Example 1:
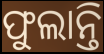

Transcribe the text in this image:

ଫୁଲାନ୍ତି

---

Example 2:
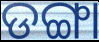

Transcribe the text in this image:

ଡଙ୍ଗା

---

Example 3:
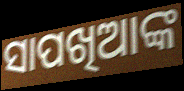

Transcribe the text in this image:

ସାପଖିଆଙ୍କ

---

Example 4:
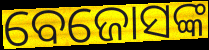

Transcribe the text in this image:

ବେଜୋସଙ୍କ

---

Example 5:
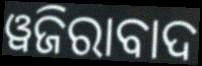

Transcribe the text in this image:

ୱଜିରାବାଦ